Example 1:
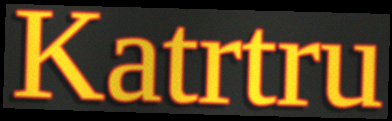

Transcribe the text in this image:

Katrtru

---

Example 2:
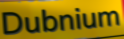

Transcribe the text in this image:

Dubnium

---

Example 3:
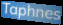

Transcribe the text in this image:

Taphnes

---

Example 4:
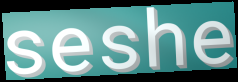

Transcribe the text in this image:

seshe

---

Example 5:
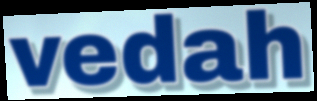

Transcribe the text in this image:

vedah